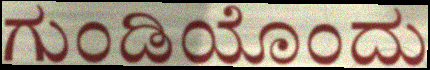
ಗುಂಡಿಯೊಂದು